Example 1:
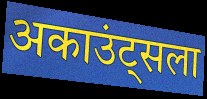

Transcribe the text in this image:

अकाउंट्सला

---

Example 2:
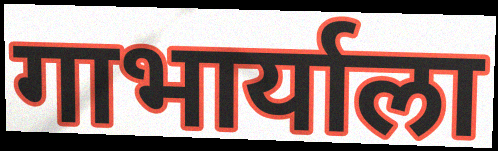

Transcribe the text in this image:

गाभार्याला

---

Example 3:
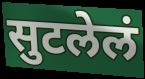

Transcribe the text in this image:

सुटलेलं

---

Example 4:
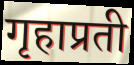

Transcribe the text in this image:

गृहाप्रती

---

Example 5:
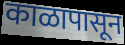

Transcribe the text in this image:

काळापासून